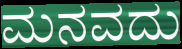
ಮನವದು